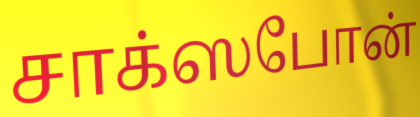
சாக்ஸபோன்